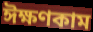
ঈক্ষণকাম